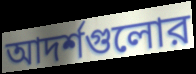
আদর্শগুলোর